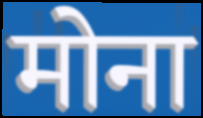
मोना